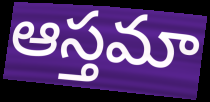
ఆస్తమా